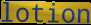
lotion